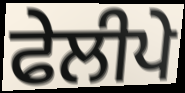
ਫੇਲੀਪੇ